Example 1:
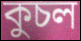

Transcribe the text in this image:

কুচল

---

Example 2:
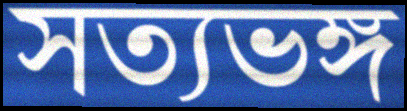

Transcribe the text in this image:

সত্যভঙ্গ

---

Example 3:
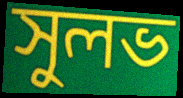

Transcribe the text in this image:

সুলভ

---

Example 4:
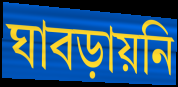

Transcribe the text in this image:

ঘাবড়ায়নি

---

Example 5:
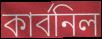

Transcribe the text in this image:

কার্বনিল